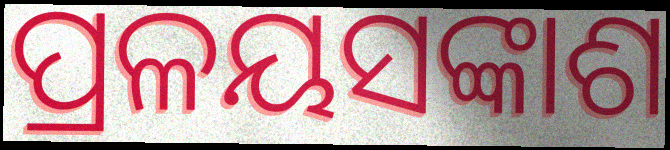
ପ୍ରଳୟସଙ୍କାଶ